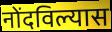
नोंदविल्यास